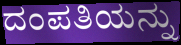
ದಂಪತಿಯನ್ನು